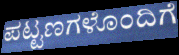
ಪಟ್ಟಣಗಳೊಂದಿಗೆ